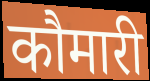
कौमारी